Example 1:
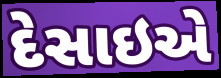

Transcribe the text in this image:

દેસાઇએ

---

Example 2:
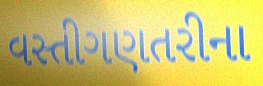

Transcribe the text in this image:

વસ્તીગણતરીના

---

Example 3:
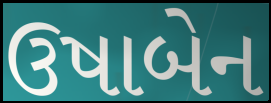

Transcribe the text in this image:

ઉષાબેન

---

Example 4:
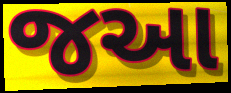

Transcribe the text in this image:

જઆ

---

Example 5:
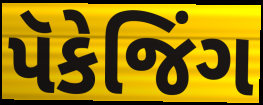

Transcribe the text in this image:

પૅકેજિંગ